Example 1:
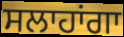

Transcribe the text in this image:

ਸਲਾਹਾਂਗਾ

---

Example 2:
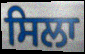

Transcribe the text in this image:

ਸਿਲਾ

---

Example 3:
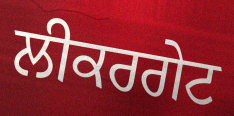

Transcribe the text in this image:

ਲੀਕਰਗੇਟ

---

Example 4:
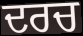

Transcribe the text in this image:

ਦਰਚ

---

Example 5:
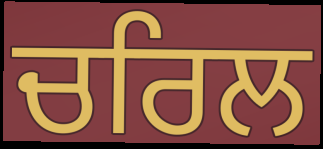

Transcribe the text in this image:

ਚਰਿਲ